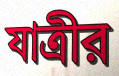
যাত্রীর